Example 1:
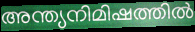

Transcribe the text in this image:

അന്ത്യനിമിഷത്തിൽ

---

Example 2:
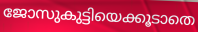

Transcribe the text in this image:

ജോസുകുട്ടിയെക്കൂടാതെ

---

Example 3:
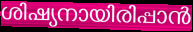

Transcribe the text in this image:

ശിഷ്യനായിരിപ്പാൻ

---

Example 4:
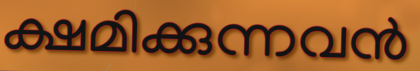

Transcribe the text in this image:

ക്ഷമിക്കുന്നവൻ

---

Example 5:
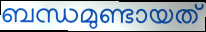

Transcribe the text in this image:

ബന്ധമുണ്ടായത്